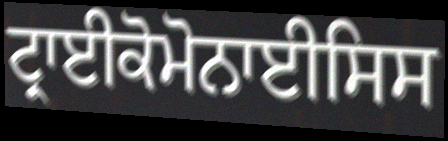
ਟ੍ਰਾਈਕੋਮੋਨਾਈਸਿਸ